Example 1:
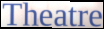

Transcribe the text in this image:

Theatre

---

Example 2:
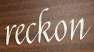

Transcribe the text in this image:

reckon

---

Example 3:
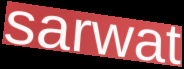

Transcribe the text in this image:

sarwat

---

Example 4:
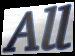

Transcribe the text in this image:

All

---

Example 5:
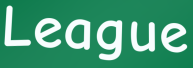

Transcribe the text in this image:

League